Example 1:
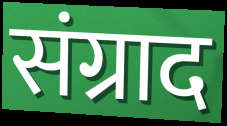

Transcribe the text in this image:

संग्राद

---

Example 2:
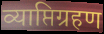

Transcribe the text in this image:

व्याप्तिग्रहण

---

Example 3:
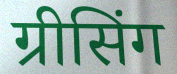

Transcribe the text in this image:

ग्रीसिंग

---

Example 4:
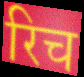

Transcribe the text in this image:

रिच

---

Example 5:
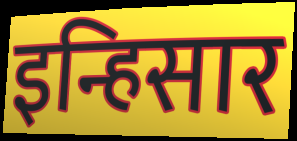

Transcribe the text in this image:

इन्हिसार